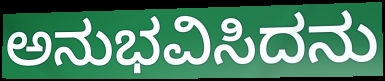
ಅನುಭವಿಸಿದನು